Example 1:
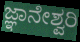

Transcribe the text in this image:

ಜ್ಞಾನೇಶ್ವರಿ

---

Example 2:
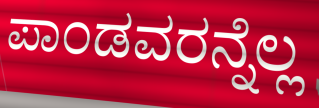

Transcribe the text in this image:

ಪಾಂಡವರನ್ನೆಲ್ಲ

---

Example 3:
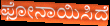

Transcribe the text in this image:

ಫೋನಾಯಿಸಿದೆ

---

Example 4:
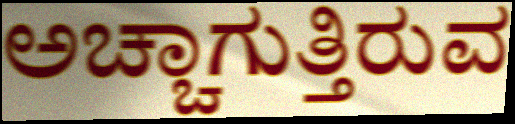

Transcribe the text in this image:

ಅಚ್ಚಾಗುತ್ತಿರುವ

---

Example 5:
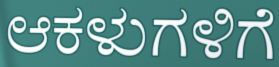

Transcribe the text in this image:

ಆಕಳುಗಳಿಗೆ